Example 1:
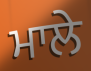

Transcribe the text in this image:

ਮਾਲੇ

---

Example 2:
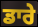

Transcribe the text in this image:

ਡਾਰੇ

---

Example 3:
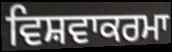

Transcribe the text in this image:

ਵਿਸ਼ਵਾਕਰਮਾ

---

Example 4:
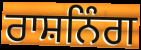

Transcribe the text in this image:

ਰਾਸ਼ਨਿੰਗ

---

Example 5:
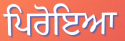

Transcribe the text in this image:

ਪਿਰੋਇਆ